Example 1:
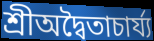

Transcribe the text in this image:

শ্রীঅদ্বৈতাচার্য্য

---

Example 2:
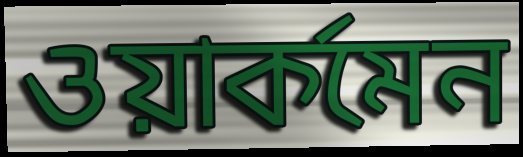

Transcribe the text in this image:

ওয়ার্কমেন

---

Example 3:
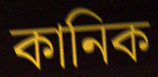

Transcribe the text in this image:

কানিক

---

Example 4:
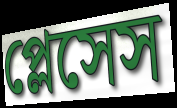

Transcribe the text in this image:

প্লেসেস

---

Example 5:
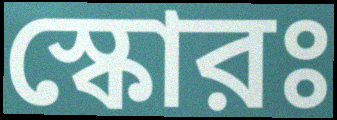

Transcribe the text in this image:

স্কোরঃ